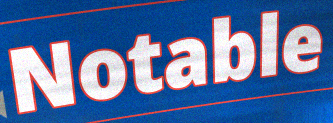
Notable